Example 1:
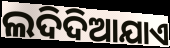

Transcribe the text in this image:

ଲଦିଦିଆଯାଏ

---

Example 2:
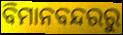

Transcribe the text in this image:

ବିମାନବନ୍ଦରରୁ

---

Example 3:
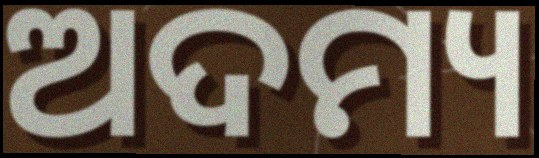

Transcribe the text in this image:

ଅଦମ୍ୟ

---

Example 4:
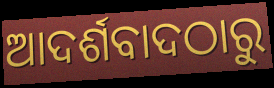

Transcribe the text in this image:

ଆଦର୍ଶବାଦଠାରୁ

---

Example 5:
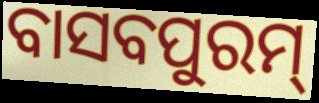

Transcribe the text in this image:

ବାସବପୁରମ୍